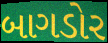
બાગડોર